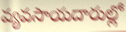
వ్యవసాయదారుల్లో